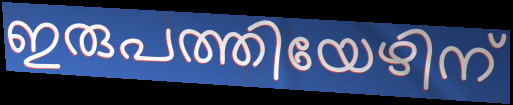
ഇരുപത്തിയേഴിന്